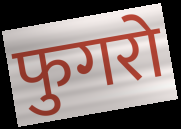
फुगरो